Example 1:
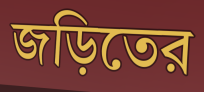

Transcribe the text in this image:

জড়িতের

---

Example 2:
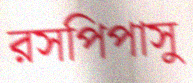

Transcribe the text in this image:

রসপিপাসু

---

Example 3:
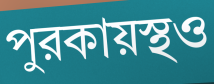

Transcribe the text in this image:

পুরকায়স্থও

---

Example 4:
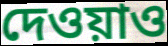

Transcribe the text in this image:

দেওয়াও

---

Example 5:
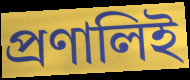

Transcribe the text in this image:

প্রণালিই